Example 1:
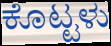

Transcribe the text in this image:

ಕೊಟ್ಟಳು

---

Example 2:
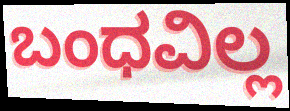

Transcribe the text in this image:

ಬಂಧವಿಲ್ಲ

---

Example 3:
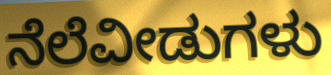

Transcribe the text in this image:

ನೆಲೆವೀಡುಗಳು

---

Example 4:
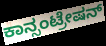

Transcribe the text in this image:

ಕಾನ್ಸಂಟ್ರೇಷನ್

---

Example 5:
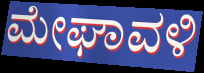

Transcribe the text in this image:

ಮೇಘಾವಳಿ